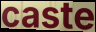
caste